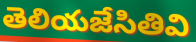
తెలియజేసితివి